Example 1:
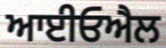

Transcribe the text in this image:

ਆਈਓਐਲ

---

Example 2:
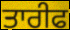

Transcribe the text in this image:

ਤਾਰੀਫ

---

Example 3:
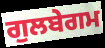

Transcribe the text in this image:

ਗੁਲਬੇਗਮ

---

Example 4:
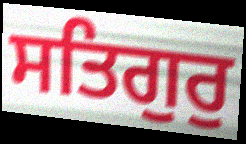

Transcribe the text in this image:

ਸਤਿਗੁਰੁ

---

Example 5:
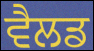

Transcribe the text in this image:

ਵੈਲਡ